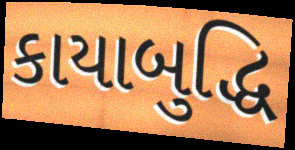
કાયાબુદ્ધિ